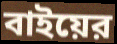
বাইয়ের